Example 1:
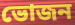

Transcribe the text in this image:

ভোজন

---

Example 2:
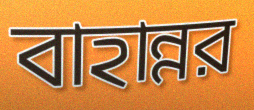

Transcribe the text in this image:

বাহান্নর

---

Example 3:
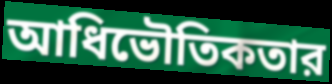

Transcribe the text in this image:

আধিভৌতিকতার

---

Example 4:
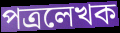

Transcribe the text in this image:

পত্রলেখক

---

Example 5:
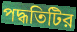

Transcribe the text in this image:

পদ্ধতিটির